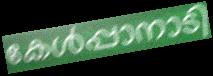
കേൾപ്പാനാടി